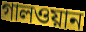
গালওয়ান